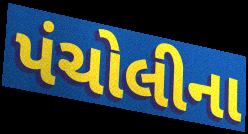
પંચોલીના